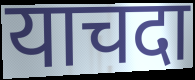
याचदा